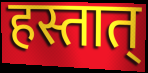
हस्तात्